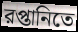
রপ্তানিতে